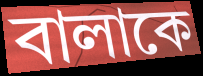
বালাকে